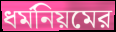
ধর্মনিয়মের